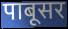
पाबूसर